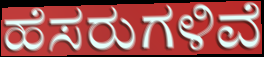
ಹೆಸರುಗಳಿವೆ